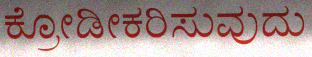
ಕ್ರೋಡೀಕರಿಸುವುದು